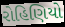
રોહિણિયો